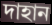
দাহান